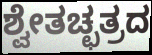
ಶ್ವೇತಚ್ಛತ್ರದ